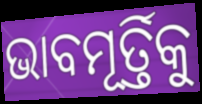
ଭାବମୂର୍ତ୍ତିକୁ